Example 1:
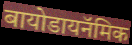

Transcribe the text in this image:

बायोडायनॅमिक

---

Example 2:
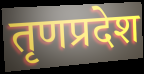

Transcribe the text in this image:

तृणप्रदेश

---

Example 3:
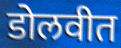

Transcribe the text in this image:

डोलवीत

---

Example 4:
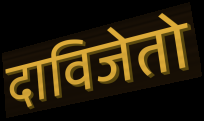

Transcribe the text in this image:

दाविजेतो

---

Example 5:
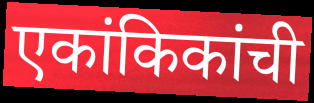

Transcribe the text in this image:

एकांकिकांची